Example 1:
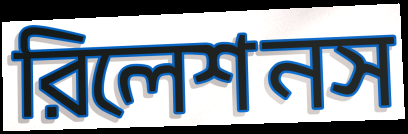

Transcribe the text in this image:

রিলেশনস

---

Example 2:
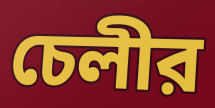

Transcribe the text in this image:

চেলীর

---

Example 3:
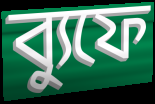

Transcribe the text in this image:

ব্যুফে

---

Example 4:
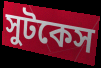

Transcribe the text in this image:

সুটকেস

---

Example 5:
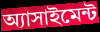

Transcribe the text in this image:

অ্যাসাইমেন্ট